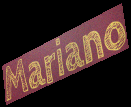
Mariano